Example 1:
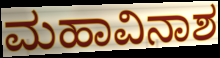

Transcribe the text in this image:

ಮಹಾವಿನಾಶ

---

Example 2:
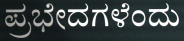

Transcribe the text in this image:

ಪ್ರಭೇದಗಳೆಂದು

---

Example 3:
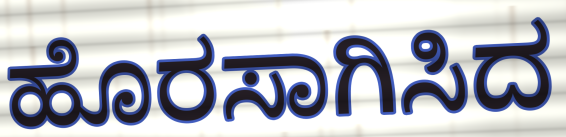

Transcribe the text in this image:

ಹೊರಸಾಗಿಸಿದ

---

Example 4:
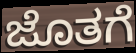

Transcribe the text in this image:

ಜೊತಗೆ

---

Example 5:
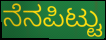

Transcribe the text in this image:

ನೆನಪಿಟ್ಟು